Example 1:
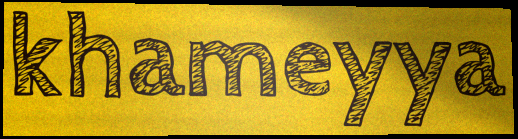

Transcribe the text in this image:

khameyya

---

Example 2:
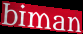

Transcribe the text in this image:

biman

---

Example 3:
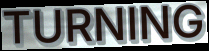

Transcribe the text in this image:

TURNING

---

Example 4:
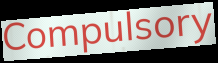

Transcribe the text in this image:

Compulsory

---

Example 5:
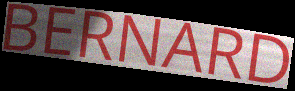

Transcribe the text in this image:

BERNARD